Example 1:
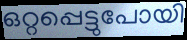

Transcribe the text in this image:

ഒറ്റപ്പെട്ടുപോയി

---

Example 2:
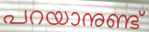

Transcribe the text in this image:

പറയാനുണ്ട്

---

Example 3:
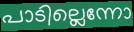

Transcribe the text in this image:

പാടില്ലെന്നോ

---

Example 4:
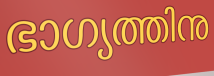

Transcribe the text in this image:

ഭാഗ്യത്തിനു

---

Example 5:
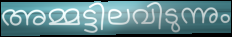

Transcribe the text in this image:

അമ്മട്ടിലവിടുന്നും